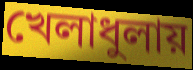
খেলাধুলায়